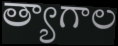
త్యాగాల